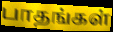
பாதங்கள்